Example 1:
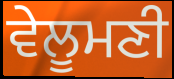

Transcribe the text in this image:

ਵੇਲੂਮਣੀ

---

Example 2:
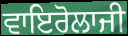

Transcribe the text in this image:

ਵਾਇਰੋਲਾਜੀ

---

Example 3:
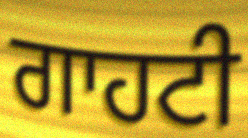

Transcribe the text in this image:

ਗਾਹਟੀ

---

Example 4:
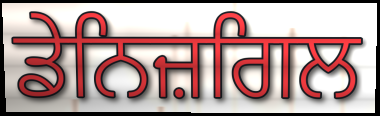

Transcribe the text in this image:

ਡੇਨਿਜ਼ਗਿਲ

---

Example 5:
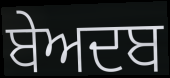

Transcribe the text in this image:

ਬੇਅਦਬ